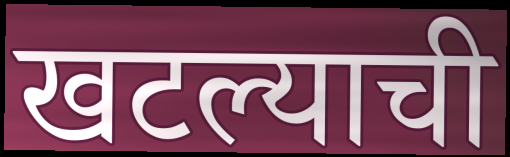
खटल्याची